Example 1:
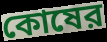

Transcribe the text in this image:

কোষের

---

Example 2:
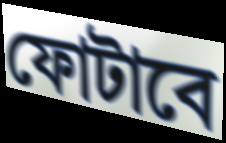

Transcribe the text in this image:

ফোটাবে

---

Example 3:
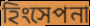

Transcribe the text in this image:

হিংসেপনা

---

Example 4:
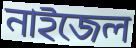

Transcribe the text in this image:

নাইজেল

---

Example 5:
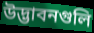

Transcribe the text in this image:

উদ্ভাবনগুলি